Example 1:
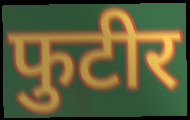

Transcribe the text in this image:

फुटीर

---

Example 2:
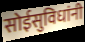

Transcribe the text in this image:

सोईसुविधांनी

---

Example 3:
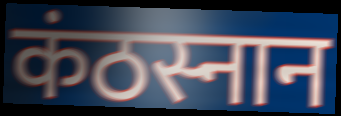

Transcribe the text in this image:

कंठस्नान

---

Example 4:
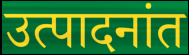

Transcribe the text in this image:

उत्पादनांत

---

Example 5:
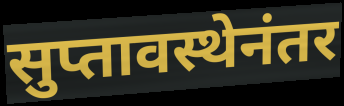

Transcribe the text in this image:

सुप्तावस्थेनंतर